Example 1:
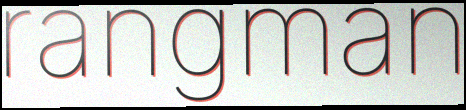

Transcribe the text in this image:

rangman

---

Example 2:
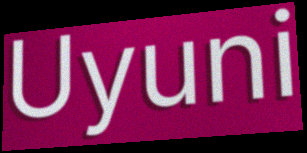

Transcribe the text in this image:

Uyuni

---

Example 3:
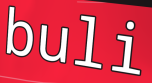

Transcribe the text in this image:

buli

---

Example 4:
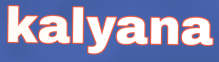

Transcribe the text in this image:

kalyana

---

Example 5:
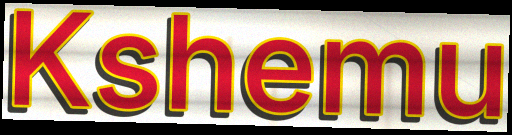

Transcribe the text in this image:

Kshemu